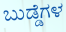
ಬುಡ್ಡೆಗಳ